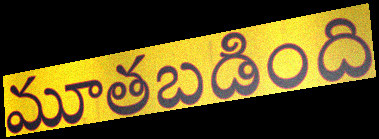
మూతబడింది